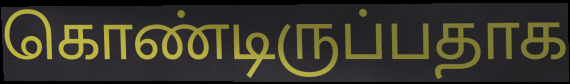
கொண்டிருப்பதாக